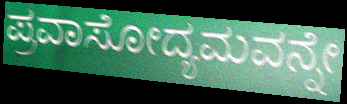
ಪ್ರವಾಸೋದ್ಯಮವನ್ನೇ